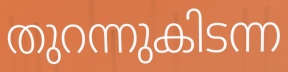
തുറന്നുകിടന്ന